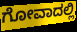
ಗೋವಾದಲ್ಲಿ